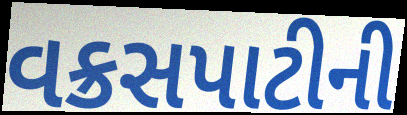
વક્રસપાટીની